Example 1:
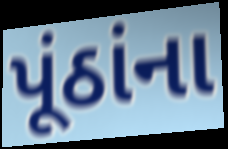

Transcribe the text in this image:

પૂંઠાંના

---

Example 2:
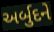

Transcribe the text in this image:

અર્બુદને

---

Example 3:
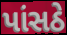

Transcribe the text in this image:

પાંસઠે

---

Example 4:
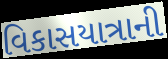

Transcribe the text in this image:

વિકાસયાત્રાની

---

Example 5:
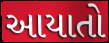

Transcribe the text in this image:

આયાતો